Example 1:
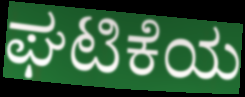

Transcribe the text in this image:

ಘಟಿಕೆಯ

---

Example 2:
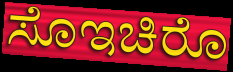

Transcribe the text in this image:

ಸೊಇಚಿರೊ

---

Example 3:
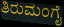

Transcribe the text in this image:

ತಿರುಮಂಗೈ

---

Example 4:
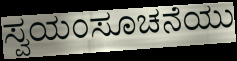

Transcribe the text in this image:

ಸ್ವಯಂಸೂಚನೆಯು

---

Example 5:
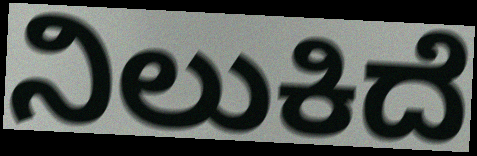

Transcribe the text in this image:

ನಿಲುಕಿದೆ